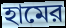
হামের